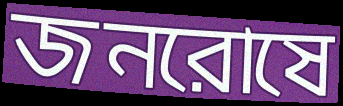
জনরোষে